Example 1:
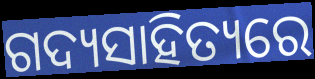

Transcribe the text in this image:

ଗଦ୍ୟସାହିତ୍ୟରେ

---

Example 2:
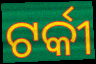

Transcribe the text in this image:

ଟର୍କୀ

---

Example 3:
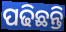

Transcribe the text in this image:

ପଢିଛନ୍ତି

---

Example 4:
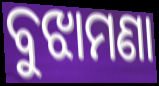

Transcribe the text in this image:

ବୁଝାମଣା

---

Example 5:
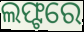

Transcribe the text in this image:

ଲଫ୍ଟରେ